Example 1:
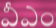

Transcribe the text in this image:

వీఎం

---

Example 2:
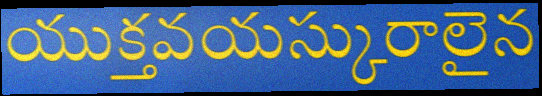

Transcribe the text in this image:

యుక్తవయస్కురాలైన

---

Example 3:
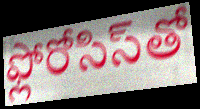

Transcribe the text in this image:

ఫ్లోరోసిస్‌తో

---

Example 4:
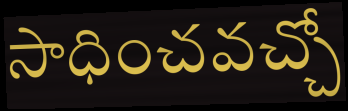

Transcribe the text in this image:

సాధించవచ్చో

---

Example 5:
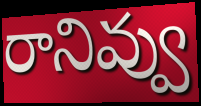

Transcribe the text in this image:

రానివ్వు